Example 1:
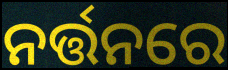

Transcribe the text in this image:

ନର୍ତ୍ତନରେ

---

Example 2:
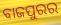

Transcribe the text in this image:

ବାଜପୁରର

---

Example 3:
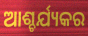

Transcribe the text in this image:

ଆଶ୍ଚର୍ଯ୍ୟକର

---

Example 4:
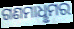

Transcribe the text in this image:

ଗଣମାଧୢମର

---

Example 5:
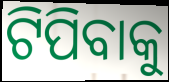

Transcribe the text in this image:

ଟିପିବାକୁ